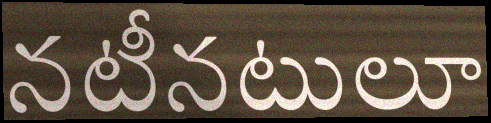
నటీనటులూ